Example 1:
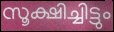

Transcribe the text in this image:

സൂക്ഷിച്ചിട്ടും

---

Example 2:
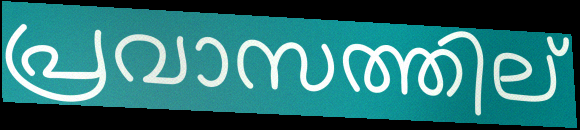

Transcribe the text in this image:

പ്രവാസത്തില്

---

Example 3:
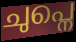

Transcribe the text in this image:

ചുപ്നെ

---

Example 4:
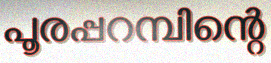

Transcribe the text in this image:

പൂരപ്പറമ്പിന്റെ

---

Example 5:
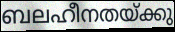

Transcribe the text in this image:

ബലഹീനതയ്ക്കു